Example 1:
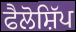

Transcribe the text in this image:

ਫੈਲੋਸ਼ਿੱਪ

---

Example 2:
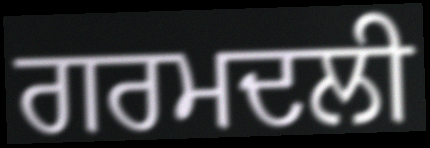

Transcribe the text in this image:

ਗਰਮਦਲੀ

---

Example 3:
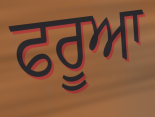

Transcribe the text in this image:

ਫਰੂਆ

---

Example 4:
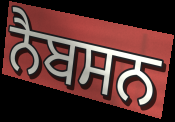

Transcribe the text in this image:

ਨੈਬਸਨ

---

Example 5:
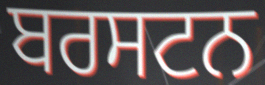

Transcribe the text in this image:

ਬਰਸਟਨ